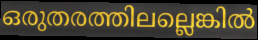
ഒരുതരത്തിലല്ലെങ്കിൽ